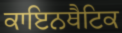
ਕਾਇਨਥੈਟਿਕ